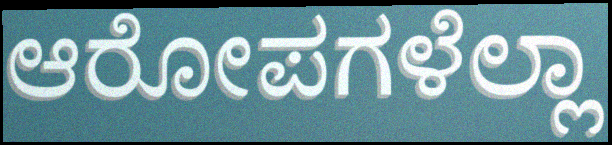
ಆರೋಪಗಳೆಲ್ಲಾ